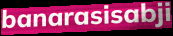
banarasisabji